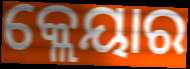
କ୍ଲେୟାର